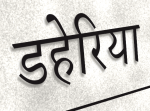
डहेरिया